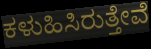
ಕಳುಹಿಸಿರುತ್ತೇವೆ